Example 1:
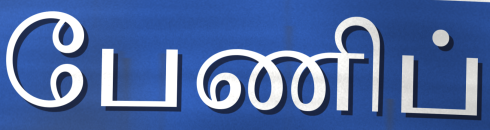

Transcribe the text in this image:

பேணிப்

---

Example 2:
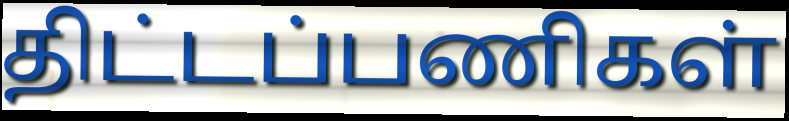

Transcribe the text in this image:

திட்டப்பணிகள்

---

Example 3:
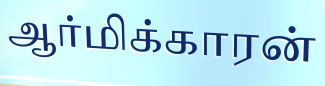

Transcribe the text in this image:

ஆர்மிக்காரன்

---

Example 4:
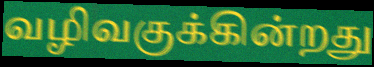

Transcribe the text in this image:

வழிவகுக்கின்றது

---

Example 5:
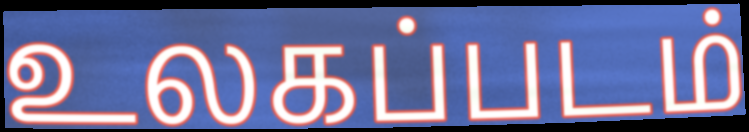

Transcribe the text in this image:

உலகப்படம்